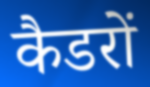
कैडरों